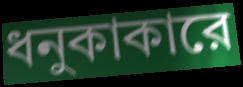
ধনুকাকারে